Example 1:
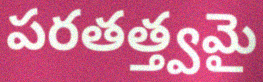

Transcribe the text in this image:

పరతత్త్వమై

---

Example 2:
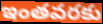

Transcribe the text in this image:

ఇంతవరకు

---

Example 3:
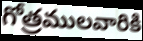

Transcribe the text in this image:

గోత్రములవారికి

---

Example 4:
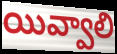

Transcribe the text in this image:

యివ్వాలి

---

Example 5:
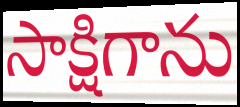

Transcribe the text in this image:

సాక్షిగాను